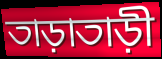
তাড়াতাড়ী